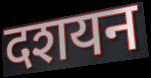
दशयन